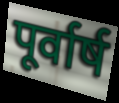
पूर्वार्ष